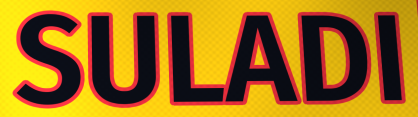
SULADI